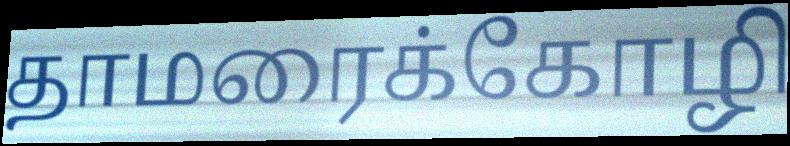
தாமரைக்கோழி